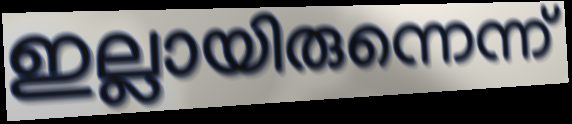
ഇല്ലായിരുന്നെന്ന്